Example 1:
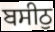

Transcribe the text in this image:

ਬਸੀਠੁ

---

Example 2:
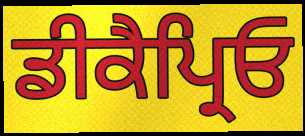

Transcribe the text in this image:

ਡੀਕੈਪ੍ਰਿਓ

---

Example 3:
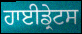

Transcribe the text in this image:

ਹਾਈਡ੍ਰੇਟਸ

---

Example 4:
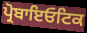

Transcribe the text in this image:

ਪ੍ਰੋਬਾਇਓਟਿਕ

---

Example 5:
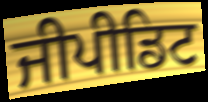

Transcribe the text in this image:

ਜੀਪੀਡਿਟ